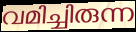
വമിച്ചിരുന്ന